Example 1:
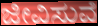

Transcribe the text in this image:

ಜೀವಿಸುವೆ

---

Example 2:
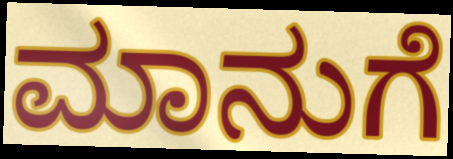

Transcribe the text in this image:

ಮಾನುಗೆ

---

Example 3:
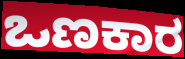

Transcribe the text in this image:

ಒಣಕಾರ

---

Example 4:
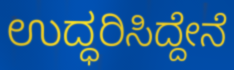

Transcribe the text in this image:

ಉದ್ಧರಿಸಿದ್ದೇನೆ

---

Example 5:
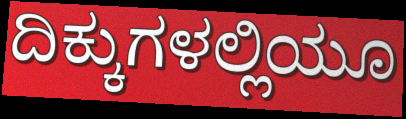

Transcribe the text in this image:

ದಿಕ್ಕುಗಳಲ್ಲಿಯೂ